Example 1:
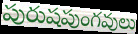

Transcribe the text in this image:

పురుషపుంగవులు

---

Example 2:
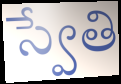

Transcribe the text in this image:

స్వేతి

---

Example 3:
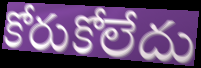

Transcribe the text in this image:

కోరుకోలేదు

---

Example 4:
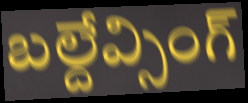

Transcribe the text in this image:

బల్దేవ్సింగ్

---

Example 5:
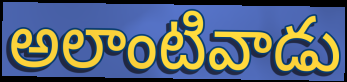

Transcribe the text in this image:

అలాంటివాడు